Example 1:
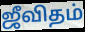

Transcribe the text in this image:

ஜீவிதம்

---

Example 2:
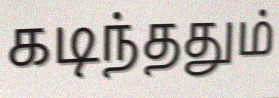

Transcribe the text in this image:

கடிந்ததும்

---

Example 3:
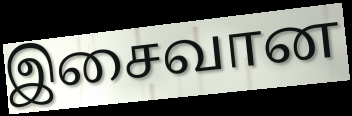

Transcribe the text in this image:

இசைவான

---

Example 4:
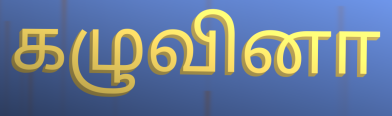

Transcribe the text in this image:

கழுவினா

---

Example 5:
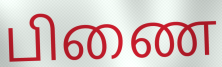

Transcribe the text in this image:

பிணை